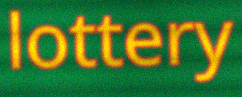
lottery